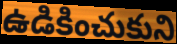
ఉడికించుకుని